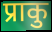
प्राकु